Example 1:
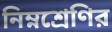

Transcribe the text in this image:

নিম্নশ্রেণির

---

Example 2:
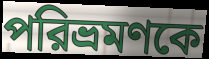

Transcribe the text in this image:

পরিভ্রমণকে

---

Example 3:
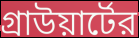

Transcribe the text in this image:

গ্রাউয়ার্টের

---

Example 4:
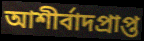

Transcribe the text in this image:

আশীর্বাদপ্রাপ্ত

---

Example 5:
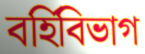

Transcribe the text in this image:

বর্হিবিভাগ